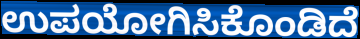
ಉಪಯೋಗಿಸಿಕೊಂಡಿದೆ